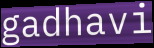
gadhavi